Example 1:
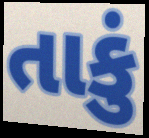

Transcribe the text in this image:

તાકું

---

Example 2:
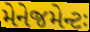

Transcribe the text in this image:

મેનેજમેન્ટઃ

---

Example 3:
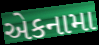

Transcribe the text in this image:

એકનામા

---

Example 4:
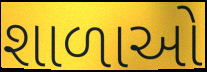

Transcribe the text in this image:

શાળાઓ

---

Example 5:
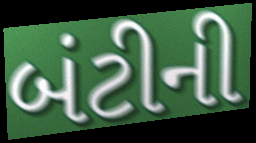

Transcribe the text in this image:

બંટીની